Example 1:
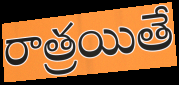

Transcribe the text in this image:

రాత్రయితే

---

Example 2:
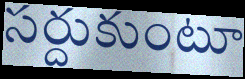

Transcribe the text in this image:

సర్దుకుంటూ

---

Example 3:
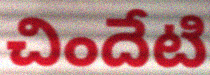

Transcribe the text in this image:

చిందేటి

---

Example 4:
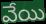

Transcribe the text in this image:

వేయి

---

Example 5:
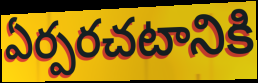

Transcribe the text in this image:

ఏర్పరచటానికి